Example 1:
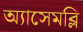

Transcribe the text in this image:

অ্যাসেমব্লি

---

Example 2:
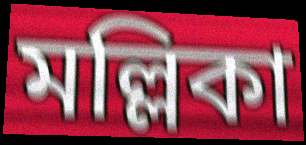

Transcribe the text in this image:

মল্লিকা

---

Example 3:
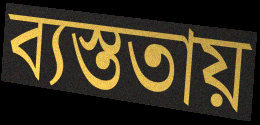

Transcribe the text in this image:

ব্যস্ততায়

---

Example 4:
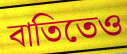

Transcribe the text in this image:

বাতিতেও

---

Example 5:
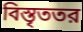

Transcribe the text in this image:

বিস্তৃততর